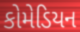
કોમેડિયન